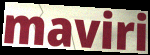
maviri